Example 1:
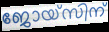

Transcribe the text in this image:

ജോയ്സിന്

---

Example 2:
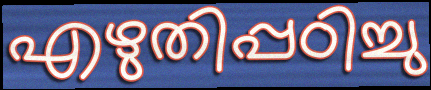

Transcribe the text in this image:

എഴുതിപ്പഠിച്ചു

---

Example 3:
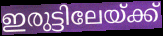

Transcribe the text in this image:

ഇരുട്ടിലേയ്ക്ക്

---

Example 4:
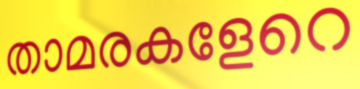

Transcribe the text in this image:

താമരകളേറെ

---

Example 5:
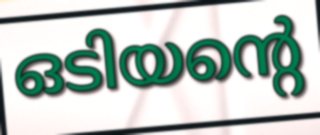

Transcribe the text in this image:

ഒടിയന്റെ